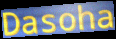
Dasoha